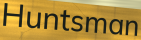
Huntsman